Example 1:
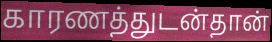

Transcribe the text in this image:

காரணத்துடன்தான்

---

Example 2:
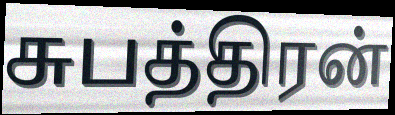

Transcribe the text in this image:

சுபத்திரன்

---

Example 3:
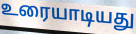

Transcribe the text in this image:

உரையாடியது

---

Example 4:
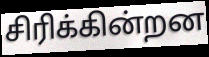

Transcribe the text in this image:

சிரிக்கின்றன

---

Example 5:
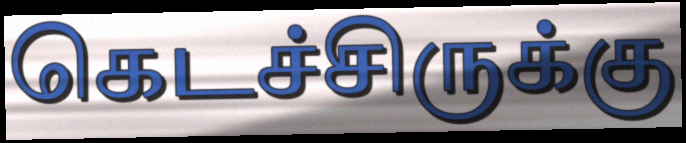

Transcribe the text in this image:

கெடச்சிருக்கு